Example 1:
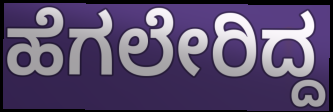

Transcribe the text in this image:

ಹೆಗಲೇರಿದ್ದ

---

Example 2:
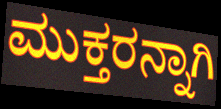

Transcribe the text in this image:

ಮುಕ್ತರನ್ನಾಗಿ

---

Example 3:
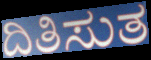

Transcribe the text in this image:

ದಿತಿಸುತ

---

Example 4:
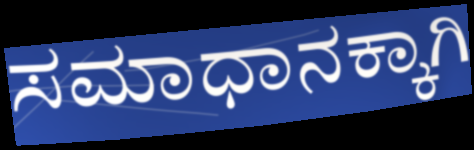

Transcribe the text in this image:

ಸಮಾಧಾನಕ್ಕಾಗಿ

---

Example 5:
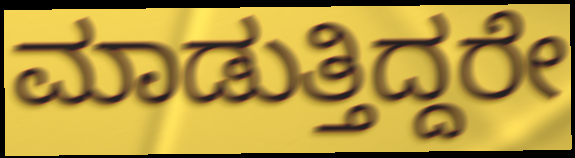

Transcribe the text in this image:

ಮಾಡುತ್ತಿದ್ದರೇ